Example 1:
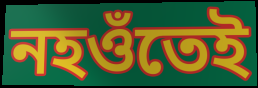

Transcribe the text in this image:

নহওঁতেই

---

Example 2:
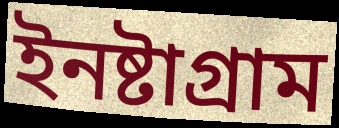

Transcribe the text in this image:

ইনষ্টাগ্ৰাম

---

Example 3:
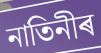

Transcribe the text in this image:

নাতিনীৰ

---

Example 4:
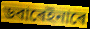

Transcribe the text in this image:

ডবাৰেইনাৰে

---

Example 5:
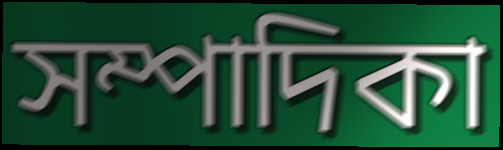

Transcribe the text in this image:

সম্পাদিকা